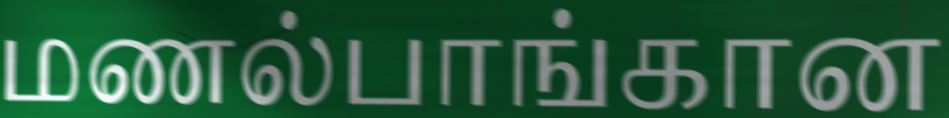
மணல்பாங்கான